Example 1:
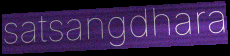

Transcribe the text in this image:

satsangdhara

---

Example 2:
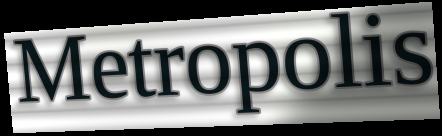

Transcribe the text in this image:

Metropolis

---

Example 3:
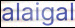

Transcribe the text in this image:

alaigal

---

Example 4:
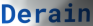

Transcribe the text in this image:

Derain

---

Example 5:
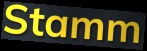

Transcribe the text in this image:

Stamm